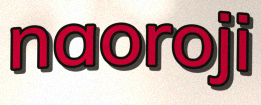
naoroji